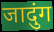
जादुंग